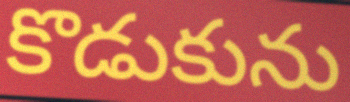
కొడుకును